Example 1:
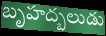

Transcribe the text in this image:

బృహద్బలుడు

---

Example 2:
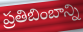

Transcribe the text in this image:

ప్రతిబింబాన్ని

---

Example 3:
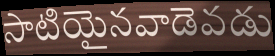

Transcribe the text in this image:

సాటియైనవాడెవడు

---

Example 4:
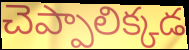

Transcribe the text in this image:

చెప్పాలిక్కడ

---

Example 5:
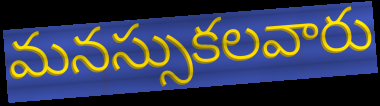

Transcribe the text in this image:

మనస్సుకలవారు